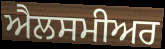
ਐਲਸਮੀਅਰ